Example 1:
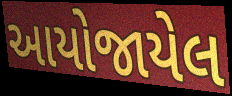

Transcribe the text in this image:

આયોજાયેલ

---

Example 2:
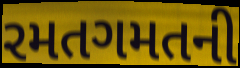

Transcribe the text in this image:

રમતગમતની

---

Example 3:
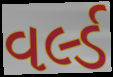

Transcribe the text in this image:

વર્લ્ડ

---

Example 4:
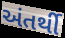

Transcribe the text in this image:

અંતર્થી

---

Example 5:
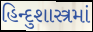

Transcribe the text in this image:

હિન્દુશાસ્ત્રમાં